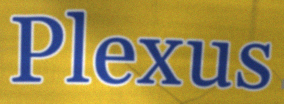
Plexus